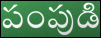
పంపుడి